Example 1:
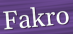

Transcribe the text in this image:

Fakro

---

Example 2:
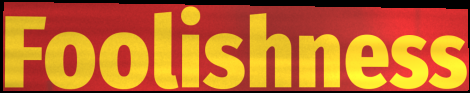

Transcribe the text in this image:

Foolishness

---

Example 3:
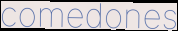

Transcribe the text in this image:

comedones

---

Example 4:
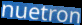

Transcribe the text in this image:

nuetron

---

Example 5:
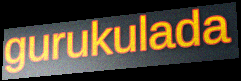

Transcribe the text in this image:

gurukulada